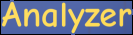
Analyzer